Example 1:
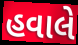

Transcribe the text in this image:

હવાલે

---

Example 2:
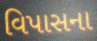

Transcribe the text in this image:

વિપાસના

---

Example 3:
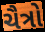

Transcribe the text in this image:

ચૈત્રો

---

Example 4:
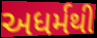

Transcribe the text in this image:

અધર્મથી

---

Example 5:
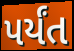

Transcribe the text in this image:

પર્યંત